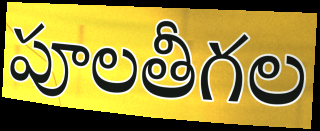
పూలతీగల